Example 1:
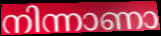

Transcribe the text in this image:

നിന്നാണാ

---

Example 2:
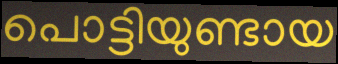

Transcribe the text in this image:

പൊട്ടിയുണ്ടായ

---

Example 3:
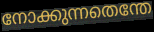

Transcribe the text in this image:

നോക്കുന്നതെന്തേ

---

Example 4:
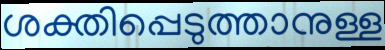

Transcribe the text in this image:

ശക്തിപ്പെടുത്താനുള്ള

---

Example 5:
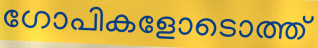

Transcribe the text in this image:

ഗോപികളോടൊത്ത്